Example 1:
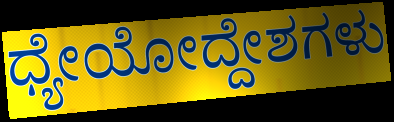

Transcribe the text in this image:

ಧ್ಯೇಯೋದ್ದೇಶಗಳು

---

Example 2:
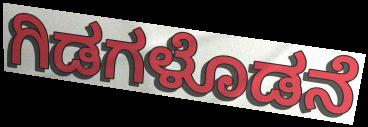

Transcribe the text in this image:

ಗಿಡಗಳೊಡನೆ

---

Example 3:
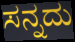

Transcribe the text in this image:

ಸನ್ನದು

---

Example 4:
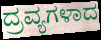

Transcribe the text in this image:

ದ್ರವ್ಯಗಳಾದ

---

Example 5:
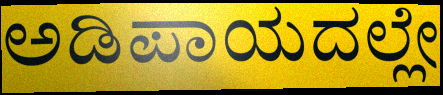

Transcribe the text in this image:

ಅಡಿಪಾಯದಲ್ಲೇ